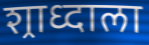
श्राध्दाला